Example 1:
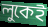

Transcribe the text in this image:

লুকেই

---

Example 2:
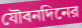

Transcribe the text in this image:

যৌবনদিনের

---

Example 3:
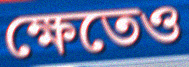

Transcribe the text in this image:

ক্ষেতেও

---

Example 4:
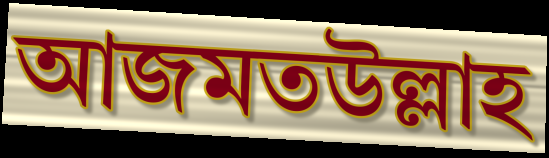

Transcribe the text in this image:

আজমতউল্লাহ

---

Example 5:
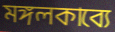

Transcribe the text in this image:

মঙ্গলকাব্যে